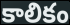
కాలికం